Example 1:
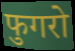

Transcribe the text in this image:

फुगरो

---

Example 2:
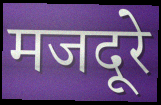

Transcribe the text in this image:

मजदूरे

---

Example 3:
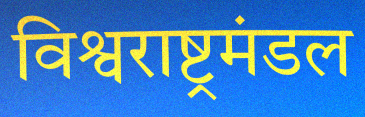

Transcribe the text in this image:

विश्वराष्ट्रमंडल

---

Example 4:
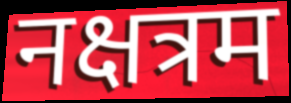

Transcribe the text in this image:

नक्षत्रम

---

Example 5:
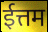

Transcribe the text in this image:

ईत्तम